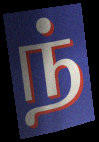
ந்